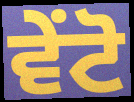
ਵੇਂਟੋ